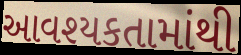
આવશ્યકતામાંથી